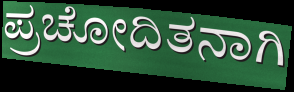
ಪ್ರಚೋದಿತನಾಗಿ